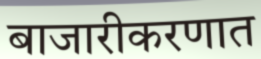
बाजारीकरणात